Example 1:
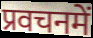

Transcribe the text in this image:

प्रवचनमें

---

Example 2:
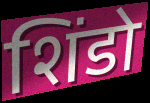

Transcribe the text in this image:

शिंडो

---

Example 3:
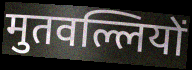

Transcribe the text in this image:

मुतवल्लियों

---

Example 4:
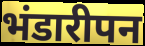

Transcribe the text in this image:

भंडारीपन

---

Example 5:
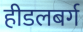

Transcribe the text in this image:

हीडलबर्ग